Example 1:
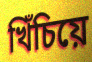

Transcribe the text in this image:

খিঁচিয়ে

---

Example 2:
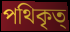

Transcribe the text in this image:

পথিকৃত্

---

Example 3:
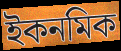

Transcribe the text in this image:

ইকনমিক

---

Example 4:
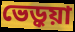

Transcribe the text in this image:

ভেড়ুয়া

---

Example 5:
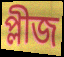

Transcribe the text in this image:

প্লীজ